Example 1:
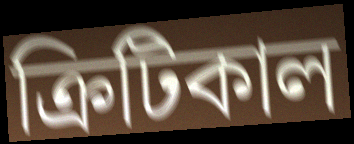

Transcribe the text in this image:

ক্রিটিকাল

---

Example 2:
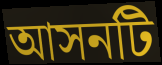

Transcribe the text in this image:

আসনটি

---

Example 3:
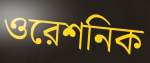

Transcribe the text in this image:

ওরেশনিক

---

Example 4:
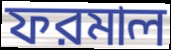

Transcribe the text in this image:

ফরমাল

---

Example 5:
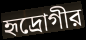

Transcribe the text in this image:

হৃদ্রোগীর